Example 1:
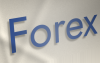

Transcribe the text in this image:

Forex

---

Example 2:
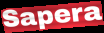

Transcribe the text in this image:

Sapera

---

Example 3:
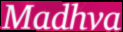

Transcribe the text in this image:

Madhva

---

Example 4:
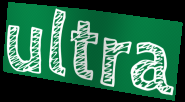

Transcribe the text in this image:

ultra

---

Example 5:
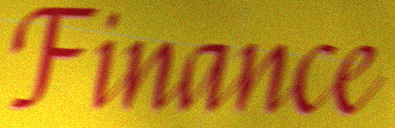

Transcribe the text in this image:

Finance